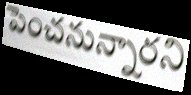
పెంచనున్నారని